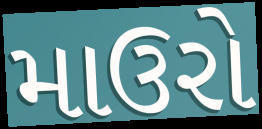
માઉરો